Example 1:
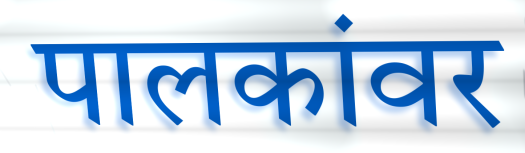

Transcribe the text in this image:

पालकांवर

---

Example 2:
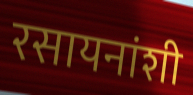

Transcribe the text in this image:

रसायनांशी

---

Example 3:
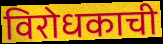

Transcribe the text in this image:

विरोधकाची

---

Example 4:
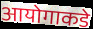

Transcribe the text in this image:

आयोगाकडे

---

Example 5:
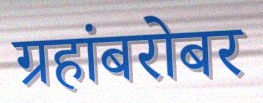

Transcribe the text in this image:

ग्रहांबरोबर